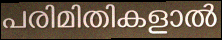
പരിമിതികളാൽ